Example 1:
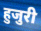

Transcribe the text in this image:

हुजुरी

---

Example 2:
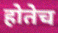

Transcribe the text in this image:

होतेच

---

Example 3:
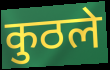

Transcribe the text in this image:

कुठले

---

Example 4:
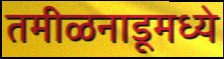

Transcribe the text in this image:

तमीळनाडूमध्ये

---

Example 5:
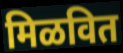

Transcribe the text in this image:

मिळवित